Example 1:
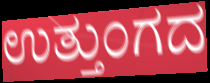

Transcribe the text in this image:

ಉತ್ತುಂಗದ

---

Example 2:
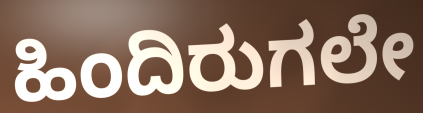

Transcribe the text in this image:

ಹಿಂದಿರುಗಲೇ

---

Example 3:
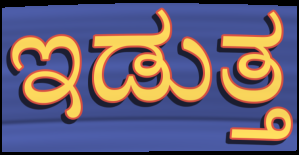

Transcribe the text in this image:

ಇಡುತ್ತ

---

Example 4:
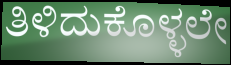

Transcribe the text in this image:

ತಿಳಿದುಕೊಳ್ಳಲೇ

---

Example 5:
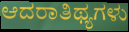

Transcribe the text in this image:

ಆದರಾತಿಥ್ಯಗಳು